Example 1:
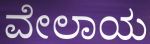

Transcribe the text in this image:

ವೇಲಾಯ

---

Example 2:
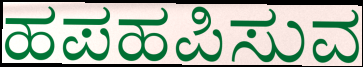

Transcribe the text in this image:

ಹಪಹಪಿಸುವ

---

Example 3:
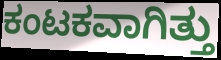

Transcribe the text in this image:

ಕಂಟಕವಾಗಿತ್ತು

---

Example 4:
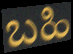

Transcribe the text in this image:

ಬಹಿ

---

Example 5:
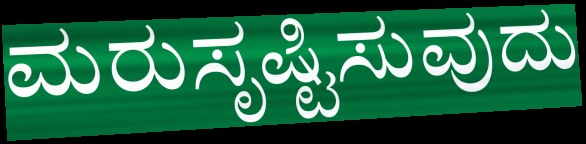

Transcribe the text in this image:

ಮರುಸೃಷ್ಟಿಸುವುದು